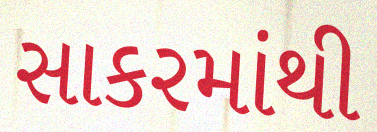
સાકરમાંથી